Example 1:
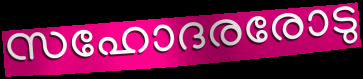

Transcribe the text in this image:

സഹോദരരോടു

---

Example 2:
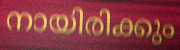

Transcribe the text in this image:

നായിരിക്കും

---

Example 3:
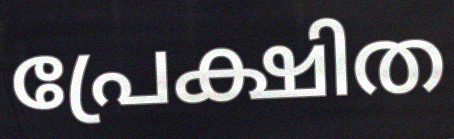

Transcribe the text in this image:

പ്രേക്ഷിത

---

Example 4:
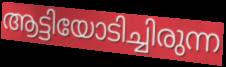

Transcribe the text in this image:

ആട്ടിയോടിച്ചിരുന്ന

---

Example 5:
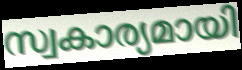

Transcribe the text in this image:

സ്വകാര്യമായി